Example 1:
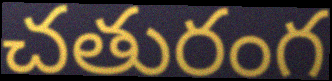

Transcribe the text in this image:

చతురంగ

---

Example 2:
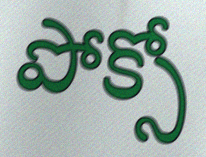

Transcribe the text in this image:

పోక్సో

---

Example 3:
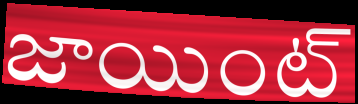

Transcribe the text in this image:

జాయింట్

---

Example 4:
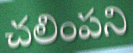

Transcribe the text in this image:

చలింపని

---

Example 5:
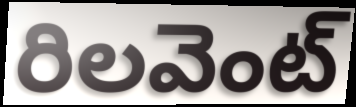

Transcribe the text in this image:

రిలవెంట్